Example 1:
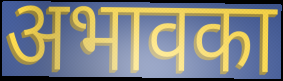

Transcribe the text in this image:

अभावका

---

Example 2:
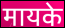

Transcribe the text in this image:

मायके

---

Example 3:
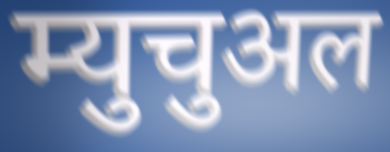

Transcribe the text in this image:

म्युचुअल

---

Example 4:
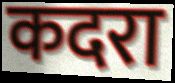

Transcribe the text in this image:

कदरा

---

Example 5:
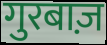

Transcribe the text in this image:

गुरबाज़